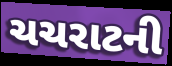
ચચરાટની